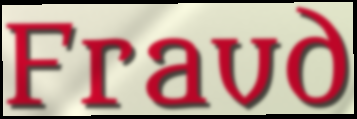
Fraud